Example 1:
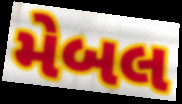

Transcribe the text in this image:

મેબલ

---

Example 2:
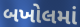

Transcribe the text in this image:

બખોલમાં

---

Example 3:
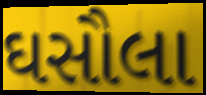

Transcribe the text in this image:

ઘસૌલા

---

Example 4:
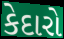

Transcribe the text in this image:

કેદારો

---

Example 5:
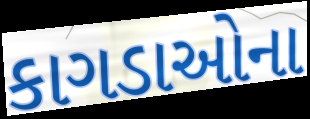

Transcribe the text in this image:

કાગડાઓના